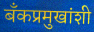
बँकप्रमुखांशी